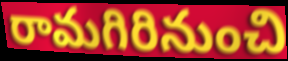
రామగిరినుంచి